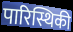
पारिस्थिकी